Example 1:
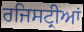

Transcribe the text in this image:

ਰਜਿਸਟ੍ਰੀਆਂ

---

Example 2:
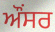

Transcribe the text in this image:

ਔਂਸਰ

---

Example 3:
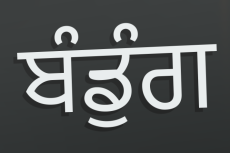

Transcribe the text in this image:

ਬੰਡੁੰਗ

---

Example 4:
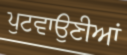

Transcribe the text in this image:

ਪੁਟਵਾਉਣੀਆਂ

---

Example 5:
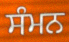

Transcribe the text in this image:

ਸੰਮਨ